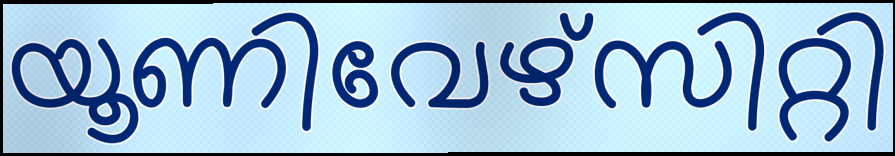
യൂണിവേഴ്സിറ്റി